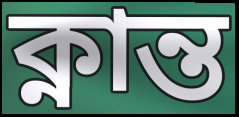
ক্নান্ত